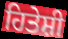
ਹਿਤੇਸ਼ੀ